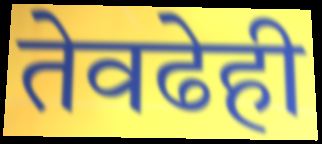
तेवढेही